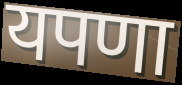
यपणा